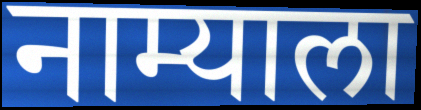
नाम्याला